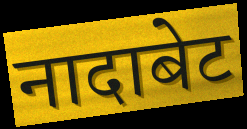
नादाबेट